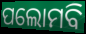
ପଲୋମବି